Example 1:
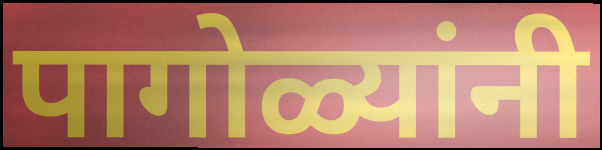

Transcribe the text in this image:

पागोळ्यांनी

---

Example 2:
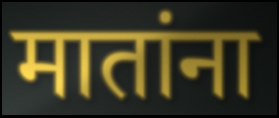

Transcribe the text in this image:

मातांना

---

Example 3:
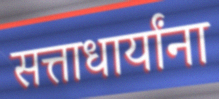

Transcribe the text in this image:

सत्ताधार्यांना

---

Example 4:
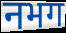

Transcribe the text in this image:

नभग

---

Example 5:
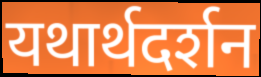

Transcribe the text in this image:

यथार्थदर्शन